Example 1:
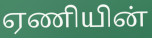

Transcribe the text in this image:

ஏணியின்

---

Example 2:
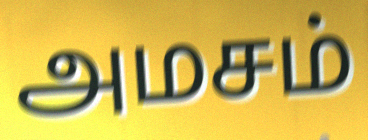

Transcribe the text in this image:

அமசம்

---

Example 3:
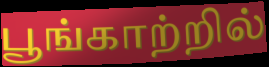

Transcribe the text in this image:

பூங்காற்றில்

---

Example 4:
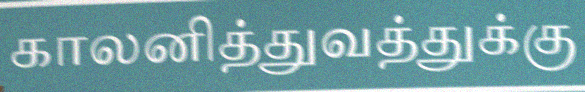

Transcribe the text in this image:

காலனித்துவத்துக்கு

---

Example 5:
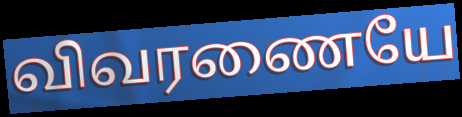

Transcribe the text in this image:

விவரணையே